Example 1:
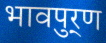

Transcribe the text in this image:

भावपुर्ण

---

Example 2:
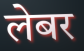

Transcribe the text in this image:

लेबर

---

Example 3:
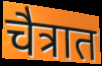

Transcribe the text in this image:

चैत्रात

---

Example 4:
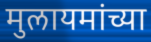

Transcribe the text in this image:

मुलायमांच्या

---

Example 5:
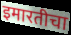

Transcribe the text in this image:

इमारतीचा